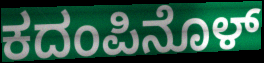
ಕದಂಪಿನೊಳ್